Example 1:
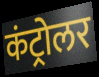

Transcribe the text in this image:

कंट्रोलर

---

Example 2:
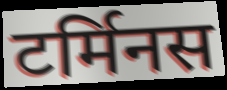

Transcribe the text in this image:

टर्मिनस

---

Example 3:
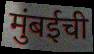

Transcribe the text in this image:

मुंबईची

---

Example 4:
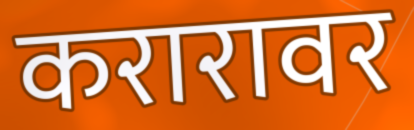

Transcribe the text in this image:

करारावर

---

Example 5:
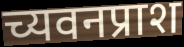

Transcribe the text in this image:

च्यवनप्राश